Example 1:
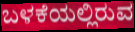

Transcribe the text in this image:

ಬಳಕೆಯಲ್ಲಿರುವ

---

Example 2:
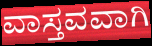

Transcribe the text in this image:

ವಾಸ್ತವವಾಗಿ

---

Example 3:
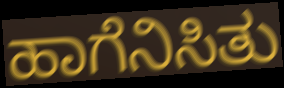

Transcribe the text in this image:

ಹಾಗೆನಿಸಿತು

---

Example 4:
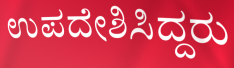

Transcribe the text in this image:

ಉಪದೇಶಿಸಿದ್ದರು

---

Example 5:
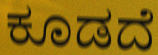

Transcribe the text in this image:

ಕೂಡದೆ